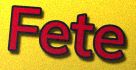
Fete